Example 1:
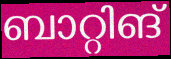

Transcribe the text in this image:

ബാറ്റിങ്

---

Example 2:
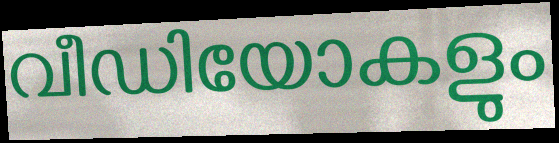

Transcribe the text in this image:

വീഡിയോകളും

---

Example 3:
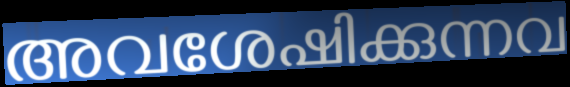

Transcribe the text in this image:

അവശേഷിക്കുന്നവ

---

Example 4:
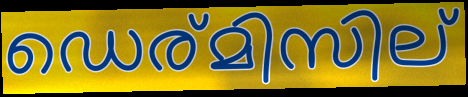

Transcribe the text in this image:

ഡെര്മിസില്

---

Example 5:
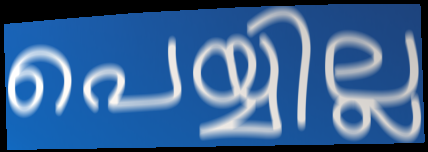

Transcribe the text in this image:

പെയ്യില്ല